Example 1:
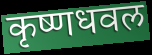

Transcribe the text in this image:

कृष्णधवल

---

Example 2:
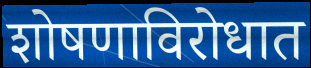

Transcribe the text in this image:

शोषणाविरोधात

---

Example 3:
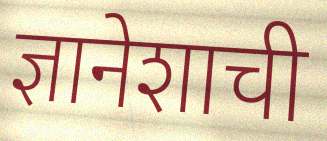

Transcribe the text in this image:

ज्ञानेशाची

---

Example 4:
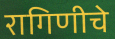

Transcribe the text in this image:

रागिणीचे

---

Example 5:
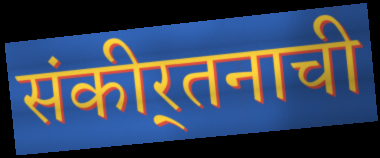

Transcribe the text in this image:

संकीर्तनाची